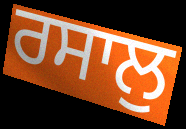
ਰਸਾਲੁ